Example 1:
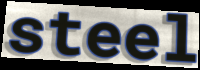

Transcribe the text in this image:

steel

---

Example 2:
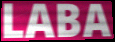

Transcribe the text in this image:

LABA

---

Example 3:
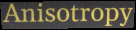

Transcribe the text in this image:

Anisotropy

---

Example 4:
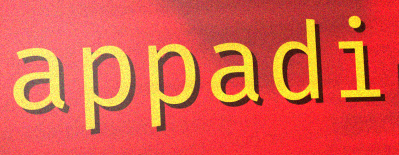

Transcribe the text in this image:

appadi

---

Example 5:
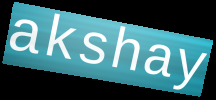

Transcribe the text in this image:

akshay